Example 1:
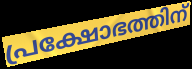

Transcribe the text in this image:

പ്രക്ഷോഭത്തിന്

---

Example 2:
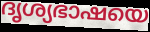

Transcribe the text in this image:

ദൃശ്യഭാഷയെ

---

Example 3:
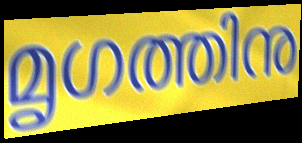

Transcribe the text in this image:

മൃഗത്തിനു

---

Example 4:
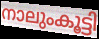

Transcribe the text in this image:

നാലുംകൂട്ടി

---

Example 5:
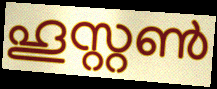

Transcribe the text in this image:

ഹൂസ്റ്റൺ